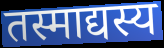
तस्माद्यस्य